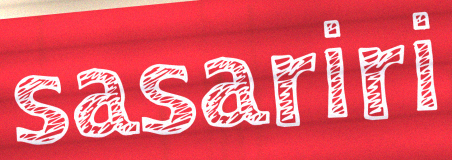
sasariri